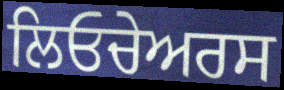
ਲਿਓਚੇਅਰਸ